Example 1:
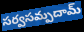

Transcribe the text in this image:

సర్వసమ్పదామ్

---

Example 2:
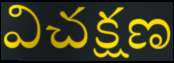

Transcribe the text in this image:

విచక్షణ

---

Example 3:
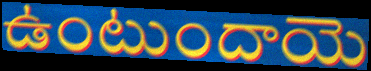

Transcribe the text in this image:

ఉంటుందాయె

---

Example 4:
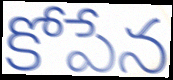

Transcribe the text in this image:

కోపేన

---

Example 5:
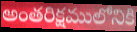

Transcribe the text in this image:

అంతరిక్షములోనికి